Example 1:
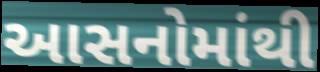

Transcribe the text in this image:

આસનોમાંથી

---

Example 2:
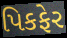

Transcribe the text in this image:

પિકફેર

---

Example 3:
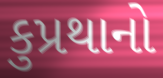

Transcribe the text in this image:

કુપ્રથાનો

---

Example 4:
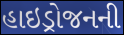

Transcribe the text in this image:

હાઇડ્રોજનની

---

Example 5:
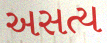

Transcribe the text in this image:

અસત્ય